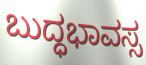
ಬುದ್ಧಭಾವಸ್ಸ